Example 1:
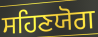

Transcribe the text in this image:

ਸਹਿਣਯੋਗ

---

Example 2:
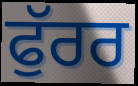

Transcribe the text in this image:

ਫੁੱਰਰ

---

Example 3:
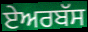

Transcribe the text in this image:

ਏਅਰਬੱਸ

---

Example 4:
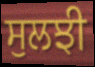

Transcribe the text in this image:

ਸੁਲਝੀ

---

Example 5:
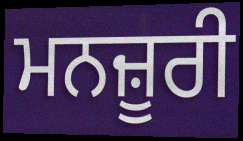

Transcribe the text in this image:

ਮਨਜ਼ੂਰੀ